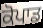
ਕੋਪਾਡ